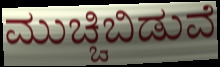
ಮುಚ್ಚಿಬಿಡುವೆ